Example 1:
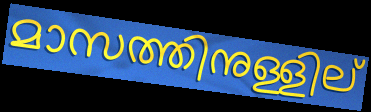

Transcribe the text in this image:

മാസത്തിനുള്ളില്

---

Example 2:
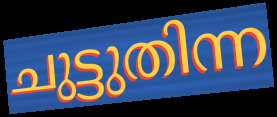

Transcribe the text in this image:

ചുട്ടുതിന്ന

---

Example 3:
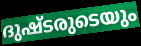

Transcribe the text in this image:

ദുഷ്ടരുടെയും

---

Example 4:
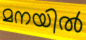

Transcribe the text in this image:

മനയിൽ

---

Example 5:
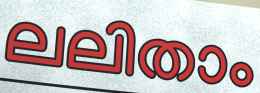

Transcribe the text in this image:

ലലിതാം